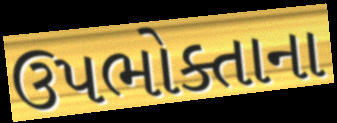
ઉપભોક્તાના